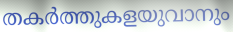
തകർത്തുകളയുവാനും